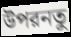
উপরনতু